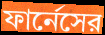
ফার্নেসের